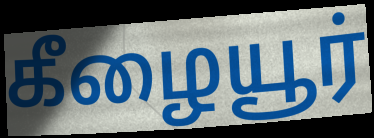
கீழையூர்